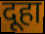
दूहा